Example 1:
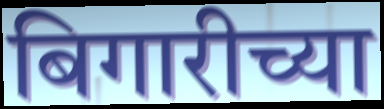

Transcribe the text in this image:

बिगारीच्या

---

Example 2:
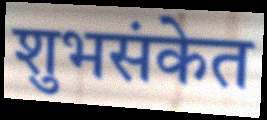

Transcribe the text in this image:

शुभसंकेत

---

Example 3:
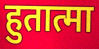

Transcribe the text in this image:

हुतात्मा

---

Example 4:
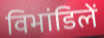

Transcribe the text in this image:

विभांडिलें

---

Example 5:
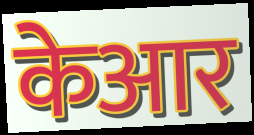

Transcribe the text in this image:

केआर